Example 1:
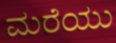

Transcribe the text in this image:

ಮರೆಯು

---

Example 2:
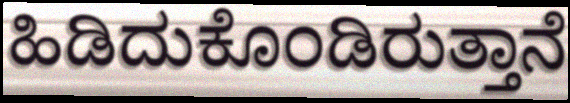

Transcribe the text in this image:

ಹಿಡಿದುಕೊಂಡಿರುತ್ತಾನೆ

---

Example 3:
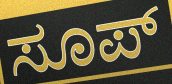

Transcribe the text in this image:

ಸೂಪ್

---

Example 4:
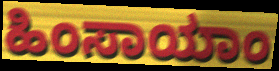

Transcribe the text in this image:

ಹಿಂಸಾಯಾಂ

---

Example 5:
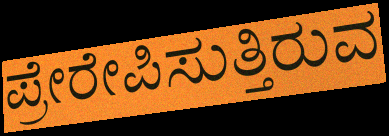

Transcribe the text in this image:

ಪ್ರೇರೇಪಿಸುತ್ತಿರುವ